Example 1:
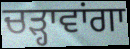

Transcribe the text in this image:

ਚੜ੍ਹਾਵਾਂਗਾ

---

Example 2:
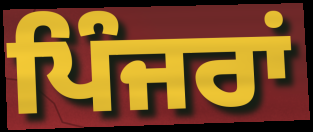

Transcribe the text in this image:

ਪਿੰਜਰਾਂ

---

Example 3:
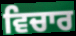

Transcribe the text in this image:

ਵਿਚਾਰ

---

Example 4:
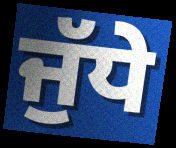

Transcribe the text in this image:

ਜੁੱਧੇ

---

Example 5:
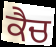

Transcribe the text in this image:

ਕੈਚ